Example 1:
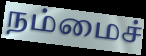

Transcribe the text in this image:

நம்மைச்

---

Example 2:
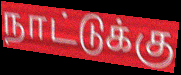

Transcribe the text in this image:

நாட்டுக்கு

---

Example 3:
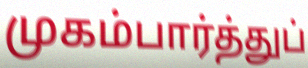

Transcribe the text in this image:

முகம்பார்த்துப்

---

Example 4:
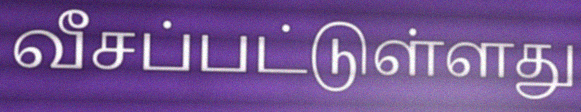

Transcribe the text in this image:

வீசப்பட்டுள்ளது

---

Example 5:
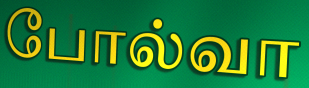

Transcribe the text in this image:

போல்வா